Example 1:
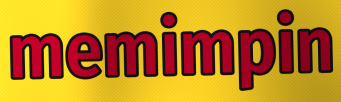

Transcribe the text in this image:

memimpin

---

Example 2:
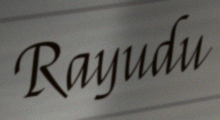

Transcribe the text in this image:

Rayudu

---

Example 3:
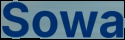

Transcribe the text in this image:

Sowa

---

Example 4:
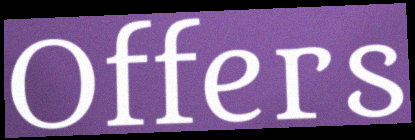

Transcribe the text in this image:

Offers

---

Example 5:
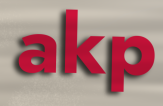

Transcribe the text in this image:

akp